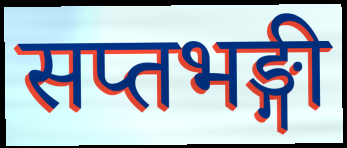
सप्तभङ्गी